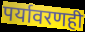
पर्यावरणही